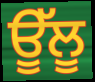
ਊੱਲੂ